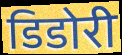
डिडोरी